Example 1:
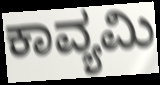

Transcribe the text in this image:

ಕಾವ್ಯಮಿ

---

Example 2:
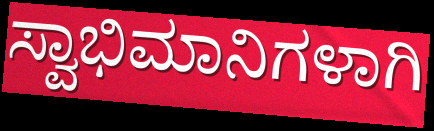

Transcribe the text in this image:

ಸ್ವಾಭಿಮಾನಿಗಳಾಗಿ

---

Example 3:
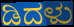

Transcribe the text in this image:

ಡಿದಳು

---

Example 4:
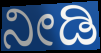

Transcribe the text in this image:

ನೀಡಿ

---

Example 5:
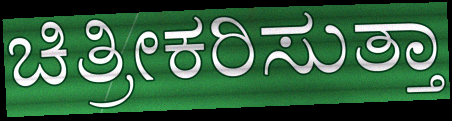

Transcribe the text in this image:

ಚಿತ್ರೀಕರಿಸುತ್ತಾ